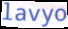
lavyo